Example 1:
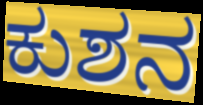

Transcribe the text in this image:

ಕುಶನ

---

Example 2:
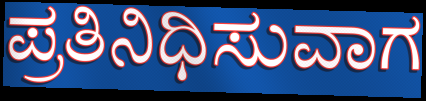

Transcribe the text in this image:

ಪ್ರತಿನಿಧಿಸುವಾಗ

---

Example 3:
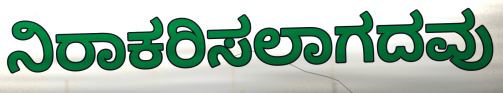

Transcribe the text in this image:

ನಿರಾಕರಿಸಲಾಗದವು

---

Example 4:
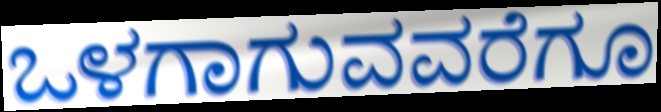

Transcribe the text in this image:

ಒಳಗಾಗುವವರೆಗೂ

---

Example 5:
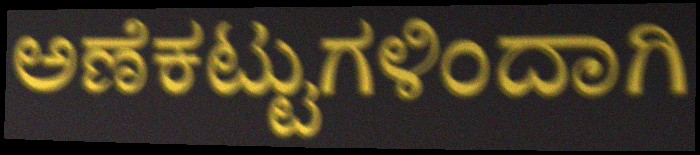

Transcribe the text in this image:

ಅಣೆಕಟ್ಟುಗಳಿಂದಾಗಿ